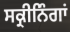
ਸਕ੍ਰੀਨਿੰਗਾਂ